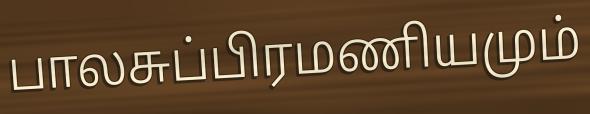
பாலசுப்பிரமணியமும்